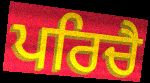
ਪਰਿਚੈ